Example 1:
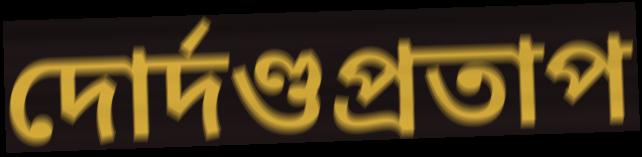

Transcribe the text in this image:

দোর্দণ্ডপ্রতাপ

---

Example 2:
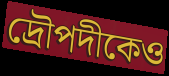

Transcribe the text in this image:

দ্রৌপদীকেও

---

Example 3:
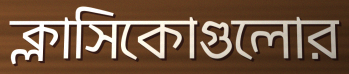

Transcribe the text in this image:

ক্লাসিকোগুলোর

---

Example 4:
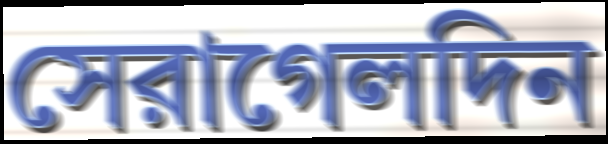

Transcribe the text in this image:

সেরাগেলদিন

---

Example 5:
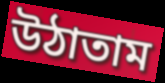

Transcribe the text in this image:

উঠাতাম